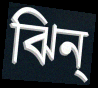
ঝিন্